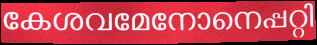
കേശവമേനോനെപ്പറ്റി